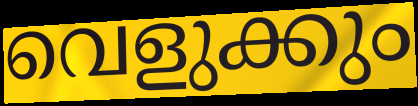
വെളുക്കും